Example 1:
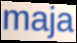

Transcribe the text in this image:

maja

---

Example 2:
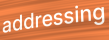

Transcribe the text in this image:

addressing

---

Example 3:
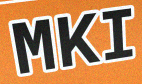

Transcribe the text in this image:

MKI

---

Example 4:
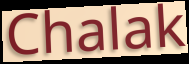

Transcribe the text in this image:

Chalak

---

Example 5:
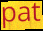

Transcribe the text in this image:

pat